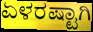
ಏಳರಷ್ಟಾಗಿ